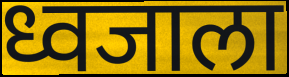
ध्वजाला